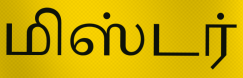
மிஸ்டர்